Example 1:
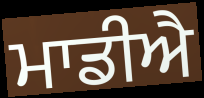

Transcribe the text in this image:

ਮਾਡੀਐ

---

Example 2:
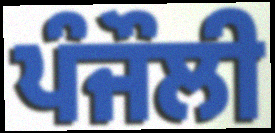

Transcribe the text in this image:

ਪੰਜੌਲੀ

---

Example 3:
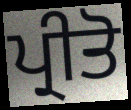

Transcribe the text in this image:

ਪ੍ਰੀਤੋ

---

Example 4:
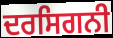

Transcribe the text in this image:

ਦਰਸਿਗਨੀ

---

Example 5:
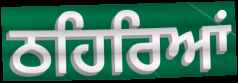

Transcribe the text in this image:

ਠਹਿਰਿਆਂ